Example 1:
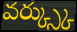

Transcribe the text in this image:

వర్క్స్కు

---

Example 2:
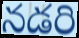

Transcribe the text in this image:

నడరి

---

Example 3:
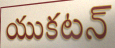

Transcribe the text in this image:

యుకటన్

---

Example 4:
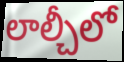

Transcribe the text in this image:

లాల్చీలో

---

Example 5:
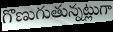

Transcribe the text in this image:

గొణుగుతున్నట్లుగా